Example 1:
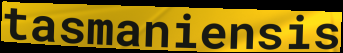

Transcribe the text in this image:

tasmaniensis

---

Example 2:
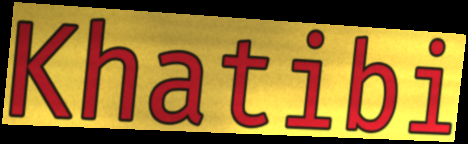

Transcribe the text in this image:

Khatibi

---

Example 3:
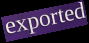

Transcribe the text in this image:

exported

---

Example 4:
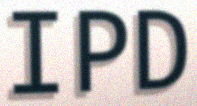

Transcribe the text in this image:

IPD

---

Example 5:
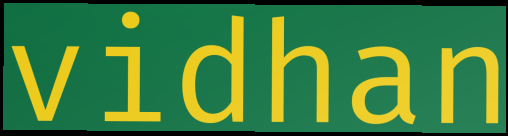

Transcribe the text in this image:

vidhan